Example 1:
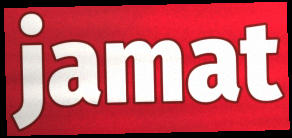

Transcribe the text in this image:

jamat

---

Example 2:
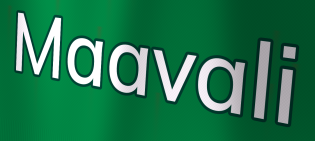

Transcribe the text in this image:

Maavali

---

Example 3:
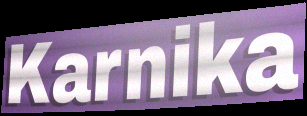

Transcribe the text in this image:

Karnika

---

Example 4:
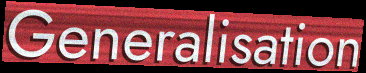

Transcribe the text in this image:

Generalisation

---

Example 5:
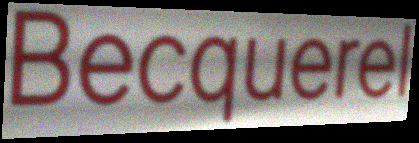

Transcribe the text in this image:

Becquerel